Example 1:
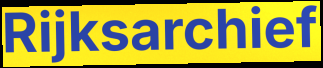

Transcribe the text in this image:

Rijksarchief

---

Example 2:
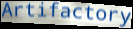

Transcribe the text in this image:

Artifactory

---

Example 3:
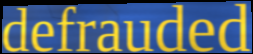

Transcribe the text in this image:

defrauded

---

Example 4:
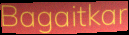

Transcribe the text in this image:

Bagaitkar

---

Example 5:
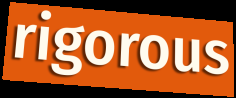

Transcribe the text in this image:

rigorous